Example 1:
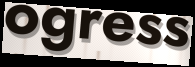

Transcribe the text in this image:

ogress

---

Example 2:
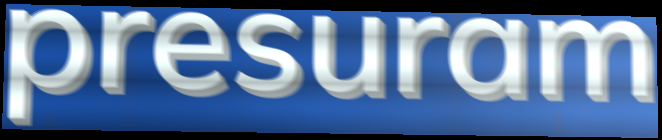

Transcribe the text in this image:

presuram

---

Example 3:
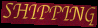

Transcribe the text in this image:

SHIPPING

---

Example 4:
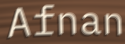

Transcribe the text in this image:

Afnan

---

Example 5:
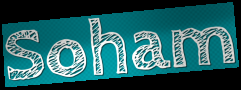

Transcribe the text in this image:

Soham